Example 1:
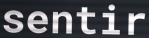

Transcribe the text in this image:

sentir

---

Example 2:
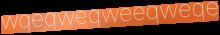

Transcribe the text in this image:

wqeqweqweeqweqe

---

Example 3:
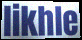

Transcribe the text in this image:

likhle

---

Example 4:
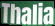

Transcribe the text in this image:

Thalia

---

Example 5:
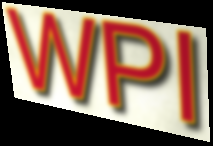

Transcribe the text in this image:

WPI